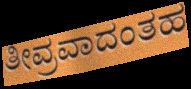
ತೀವ್ರವಾದಂತಹ